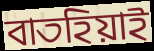
বাতহিয়াই